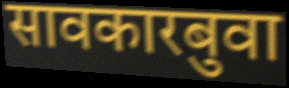
सावकारबुवा